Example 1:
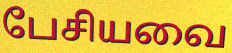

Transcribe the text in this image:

பேசியவை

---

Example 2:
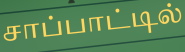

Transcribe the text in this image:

சாப்பாட்டில்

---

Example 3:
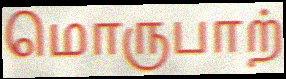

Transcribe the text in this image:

மொருபாற்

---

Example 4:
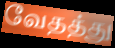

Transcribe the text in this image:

வேதத்து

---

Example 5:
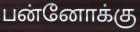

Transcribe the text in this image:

பன்னோக்கு